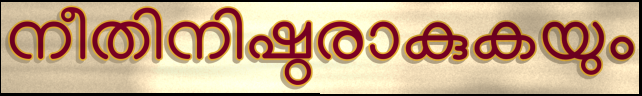
നീതിനിഷ്ഠരാകുകയും